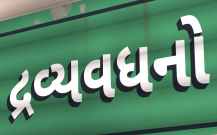
દ્રવ્યવધનો